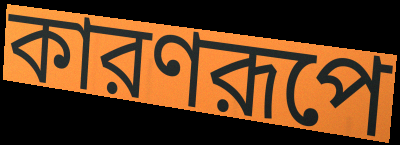
কারণরূপে